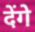
देंगे